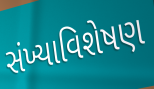
સંખ્યાવિશેષણ